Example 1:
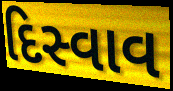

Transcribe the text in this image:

દિસ્વાવ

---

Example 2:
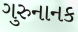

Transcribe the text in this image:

ગુરુનાનક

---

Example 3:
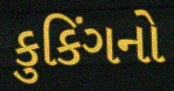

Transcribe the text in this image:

કુકિંગનો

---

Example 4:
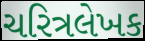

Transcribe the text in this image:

ચરિત્રલેખક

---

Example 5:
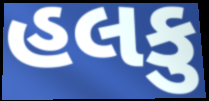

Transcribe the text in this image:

હલકુ